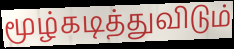
மூழ்கடித்துவிடும்